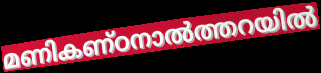
മണികണ്ഠനാൽത്തറയിൽ